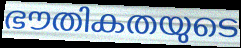
ഭൗതികതയുടെ